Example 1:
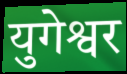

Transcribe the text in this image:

युगेश्वर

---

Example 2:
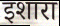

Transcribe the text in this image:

इशारा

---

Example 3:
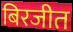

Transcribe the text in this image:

बिरजीत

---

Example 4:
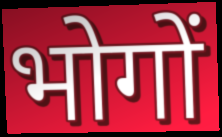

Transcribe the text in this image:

भोगों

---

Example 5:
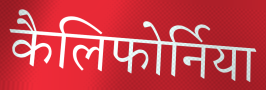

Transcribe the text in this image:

कैलिफोर्निया